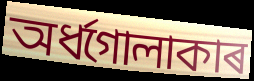
অৰ্ধগোলাকাৰ